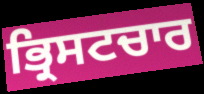
ਭ੍ਰਿਸਟਚਾਰ